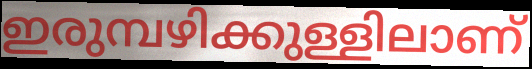
ഇരുമ്പഴിക്കുള്ളിലാണ്